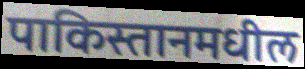
पाकिस्तानमधील